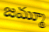
జమ్మూ